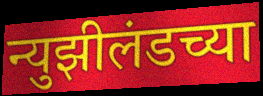
न्युझीलंडच्या